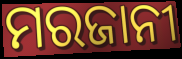
ମରଜାନୀ